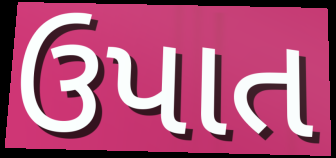
ઉપાત